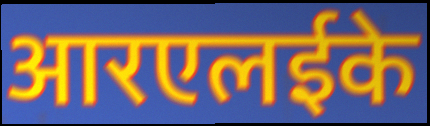
आरएलईके